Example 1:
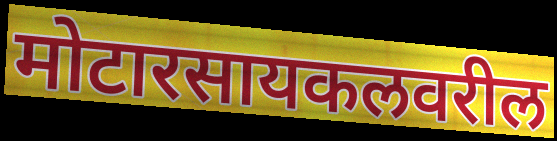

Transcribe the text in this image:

मोटारसायकलवरील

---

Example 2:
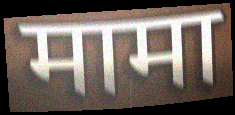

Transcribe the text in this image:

मामा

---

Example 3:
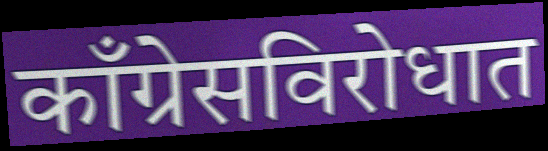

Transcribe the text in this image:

काँग्रेसविरोधात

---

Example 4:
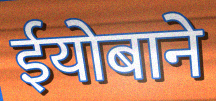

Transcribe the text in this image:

ईयोबाने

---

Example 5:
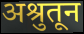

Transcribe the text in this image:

अश्रुतून